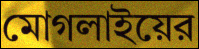
মোগলাইয়ের